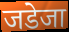
जडेजा